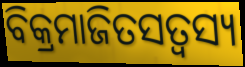
ବିକ୍ରମାଜିତସତ୍ଵସ୍ୟ